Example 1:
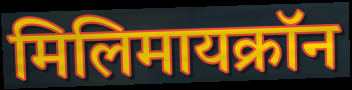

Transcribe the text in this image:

मिलिमायक्रॉन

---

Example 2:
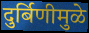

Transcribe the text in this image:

दुर्बिणीमुळे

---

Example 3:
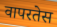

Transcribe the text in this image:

वापरतेस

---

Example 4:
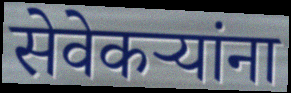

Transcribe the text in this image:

सेवेकऱ्यांना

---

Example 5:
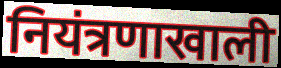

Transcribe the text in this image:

नियंत्रणाखाली